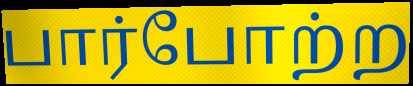
பார்போற்ற